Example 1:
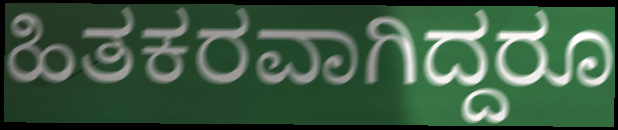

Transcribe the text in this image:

ಹಿತಕರವಾಗಿದ್ದರೂ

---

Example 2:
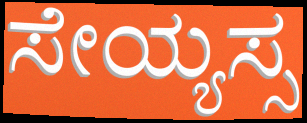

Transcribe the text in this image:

ಸೇಯ್ಯಸ್ಸ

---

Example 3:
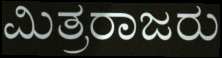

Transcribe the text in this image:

ಮಿತ್ರರಾಜರು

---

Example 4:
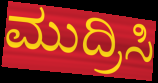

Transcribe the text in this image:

ಮುದ್ರಿಸಿ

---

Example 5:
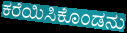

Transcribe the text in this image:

ಕರೆಯಿಸಿಕೊಂಡನು